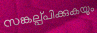
സങ്കല്പ്പിക്കുകയും